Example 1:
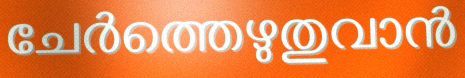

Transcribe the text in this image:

ചേർത്തെഴുതുവാൻ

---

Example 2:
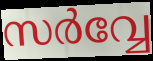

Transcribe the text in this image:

സർവ്വേ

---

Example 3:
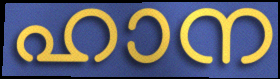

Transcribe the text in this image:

ഹാന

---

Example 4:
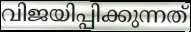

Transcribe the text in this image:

വിജയിപ്പിക്കുന്നത്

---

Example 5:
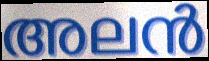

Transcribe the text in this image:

അലൻ